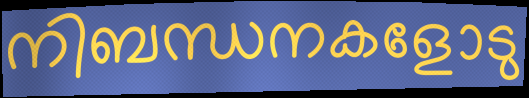
നിബന്ധനകളോടു